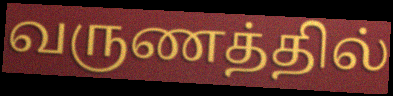
வருணத்தில்